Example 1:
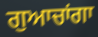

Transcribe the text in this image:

ਗੁਆਚਾਂਗਾ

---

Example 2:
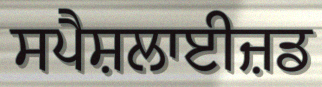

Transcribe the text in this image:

ਸਪੈਸ਼ਲਾਈਜ਼ਡ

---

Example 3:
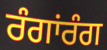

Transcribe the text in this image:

ਰੰਗਾਂਰੰਗ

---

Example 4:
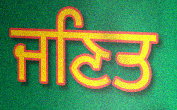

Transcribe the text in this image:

ਜਣਿਤ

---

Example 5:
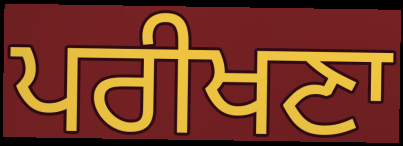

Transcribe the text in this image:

ਪਰੀਖਣਾ